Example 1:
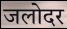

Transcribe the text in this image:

जलोदर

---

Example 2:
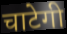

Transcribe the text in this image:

चाटेगी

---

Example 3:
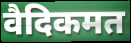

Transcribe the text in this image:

वैदिकमत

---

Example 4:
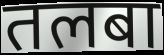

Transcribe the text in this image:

तलबा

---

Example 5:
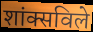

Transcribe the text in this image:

शांक्सविले